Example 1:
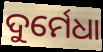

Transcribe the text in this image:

ଦୁର୍ମେଧା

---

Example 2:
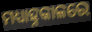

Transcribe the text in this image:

ମଧ୍ୟାହ୍ନକାଳରେ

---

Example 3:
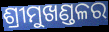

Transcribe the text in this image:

ଶ୍ରୀମୁଖଣ୍ଡଳର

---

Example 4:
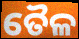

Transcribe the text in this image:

ତୈଳ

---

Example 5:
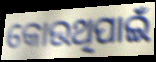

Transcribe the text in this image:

କୋଉଥିପାଇଁ